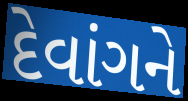
દેવાંગને